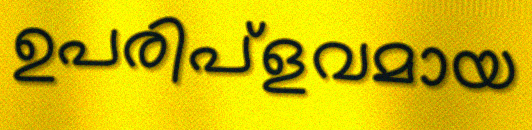
ഉപരിപ്ളവമായ